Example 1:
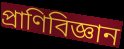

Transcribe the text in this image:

প্রাণিবিজ্ঞান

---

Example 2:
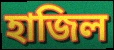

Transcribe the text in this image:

হাজিল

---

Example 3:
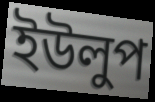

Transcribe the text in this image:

ইউলুপ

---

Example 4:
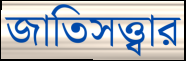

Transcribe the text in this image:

জাতিসত্ত্বার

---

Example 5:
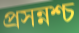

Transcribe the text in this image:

প্রসন্নশ্চ